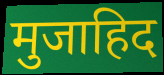
मुजाहिद